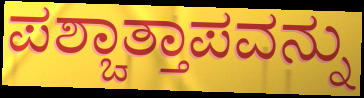
ಪಶ್ಚಾತ್ತಾಪವನ್ನು